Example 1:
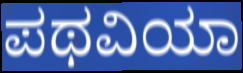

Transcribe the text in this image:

ಪಥವಿಯಾ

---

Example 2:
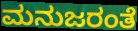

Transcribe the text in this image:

ಮನುಜರಂತೆ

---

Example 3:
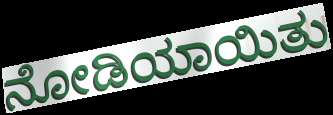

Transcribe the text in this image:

ನೋಡಿಯಾಯಿತು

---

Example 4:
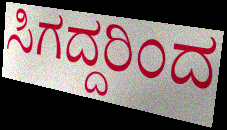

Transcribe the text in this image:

ಸಿಗದ್ದರಿಂದ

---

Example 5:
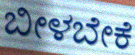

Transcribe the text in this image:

ಬೀಳಬೇಕೆ